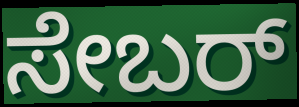
ಸೇಬರ್